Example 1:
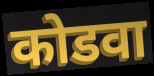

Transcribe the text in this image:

कोडवा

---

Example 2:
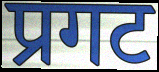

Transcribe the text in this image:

प्रगट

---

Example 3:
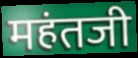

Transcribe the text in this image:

महंतजी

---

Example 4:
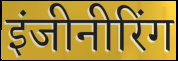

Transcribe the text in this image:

इंजीनीरिंग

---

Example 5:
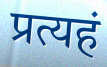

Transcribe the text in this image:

प्रत्यहं